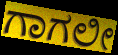
ಗಾಗಲೀ